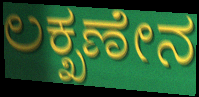
ಲಕ್ಖಣೇನ